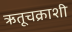
ऋतूचक्राशी